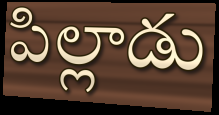
పిల్లాడు